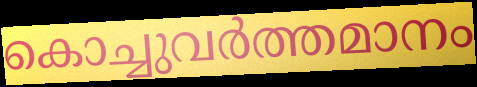
കൊച്ചുവർത്തമാനം